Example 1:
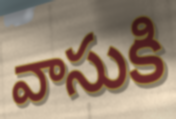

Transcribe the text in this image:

వాసుకి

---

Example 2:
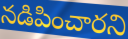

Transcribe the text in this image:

నడిపించారని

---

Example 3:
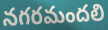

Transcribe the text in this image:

నగరమందలి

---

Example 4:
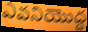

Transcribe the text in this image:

ఎవనియొద్ద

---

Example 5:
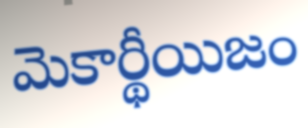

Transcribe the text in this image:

మెకార్థీయిజం